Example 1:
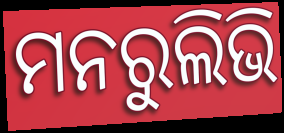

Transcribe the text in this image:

ମନରୁଲିଭି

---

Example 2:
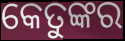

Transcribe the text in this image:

କେତୁଙ୍କର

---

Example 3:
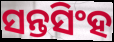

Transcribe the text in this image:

ସନ୍ତସିଂହ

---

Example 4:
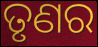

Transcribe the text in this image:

ତୃଣର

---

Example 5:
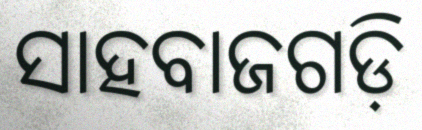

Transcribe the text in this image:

ସାହବାଜଗଡ଼ି